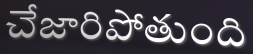
చేజారిపోతుంది